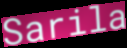
Sarila